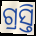
ଗ୍ରସ୍ତି